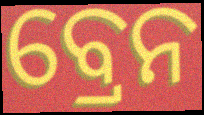
ବ୍ରେନ